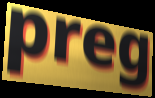
preg